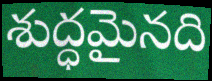
శుద్ధమైనది